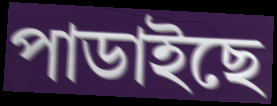
পাডাইছে